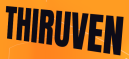
THIRUVEN